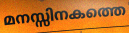
മനസ്സിനകത്തെ